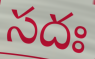
సదః